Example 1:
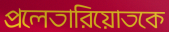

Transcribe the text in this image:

প্রলেতারিয়োতকে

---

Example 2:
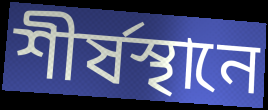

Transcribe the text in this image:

শীর্ষস্থানে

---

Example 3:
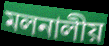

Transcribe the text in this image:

মলনালীয়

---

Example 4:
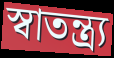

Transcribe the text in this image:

স্বাতন্ত্র্য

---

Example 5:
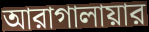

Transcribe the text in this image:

আরাগালায়ার